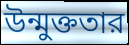
উন্মুক্ততার